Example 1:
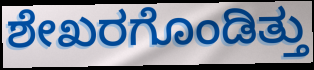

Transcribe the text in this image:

ಶೇಖರಗೊಂಡಿತ್ತು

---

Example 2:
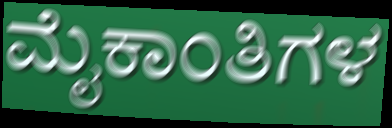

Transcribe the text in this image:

ಮೈಕಾಂತಿಗಳ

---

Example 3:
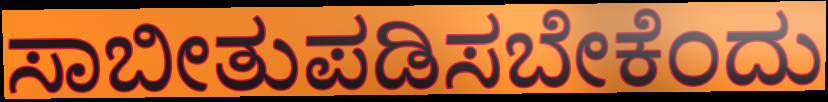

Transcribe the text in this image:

ಸಾಬೀತುಪಡಿಸಬೇಕೆಂದು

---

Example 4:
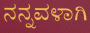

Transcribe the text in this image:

ನನ್ನವಳಾಗಿ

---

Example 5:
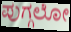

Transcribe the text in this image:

ಪುಗ್ಗಲೋ